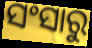
ସଂସାରୁ